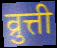
व्रुत्ती